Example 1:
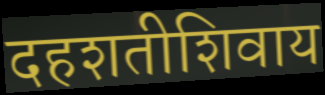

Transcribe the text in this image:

दहशतीशिवाय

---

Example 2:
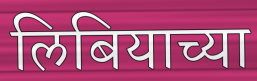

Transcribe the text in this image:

लिबियाच्या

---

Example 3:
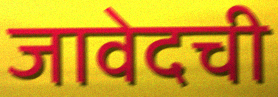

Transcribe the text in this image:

जावेदची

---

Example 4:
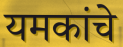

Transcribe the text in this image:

यमकांचे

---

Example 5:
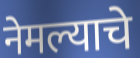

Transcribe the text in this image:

नेमल्याचे